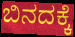
ಬಿನದಕ್ಕೆ